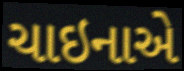
ચાઇનાએ